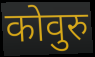
कोवुरु